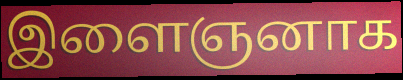
இளைஞனாக